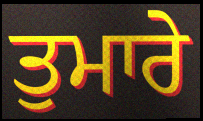
ਤੁਮਾਰੇ